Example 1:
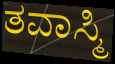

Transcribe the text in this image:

ತವಾಸ್ಮಿ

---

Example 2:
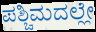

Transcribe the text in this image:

ಪಶ್ಚಿಮದಲ್ಲೇ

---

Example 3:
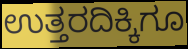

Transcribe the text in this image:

ಉತ್ತರದಿಕ್ಕಿಗೂ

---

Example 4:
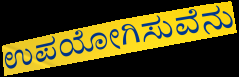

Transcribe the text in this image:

ಉಪಯೋಗಿಸುವೆನು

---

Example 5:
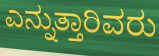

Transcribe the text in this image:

ಎನ್ನುತ್ತಾರಿವರು